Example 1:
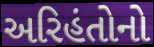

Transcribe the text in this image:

અરિહંતોનો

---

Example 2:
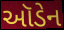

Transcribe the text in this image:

ઑડેન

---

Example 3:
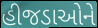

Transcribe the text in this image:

હીજડાઓને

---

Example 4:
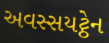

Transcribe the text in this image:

અવસ્સયટ્ઠેન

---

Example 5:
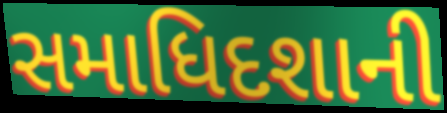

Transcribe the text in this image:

સમાધિદશાની